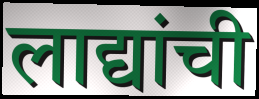
लाद्यांची